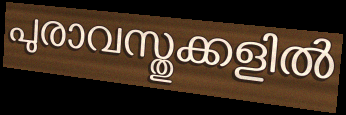
പുരാവസ്തുക്കളിൽ